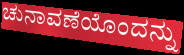
ಚುನಾವಣೆಯೊಂದನ್ನು